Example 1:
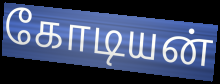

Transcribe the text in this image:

கோடியன்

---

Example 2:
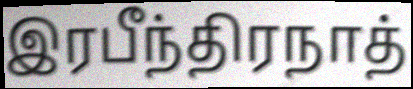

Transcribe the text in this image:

இரபீந்திரநாத்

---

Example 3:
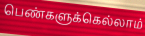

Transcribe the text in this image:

பெண்களுக்கெல்லாம்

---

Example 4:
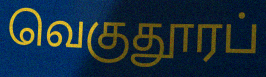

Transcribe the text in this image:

வெகுதூரப்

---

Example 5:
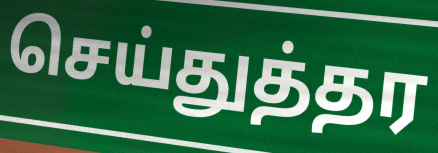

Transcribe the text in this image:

செய்துத்தர